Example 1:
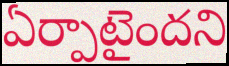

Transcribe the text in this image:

ఏర్పాటైందని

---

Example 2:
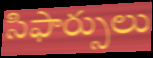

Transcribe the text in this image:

సిఫార్సులు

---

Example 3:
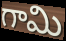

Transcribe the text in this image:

గామి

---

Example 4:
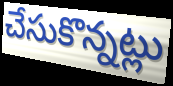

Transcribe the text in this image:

చేసుకొన్నట్లు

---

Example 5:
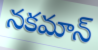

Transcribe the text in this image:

నకమాన్